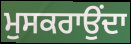
ਮੁਸਕਰਾਉਂਦਾ